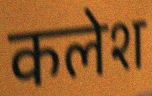
कलेश